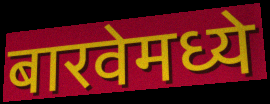
बारवेमध्ये